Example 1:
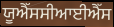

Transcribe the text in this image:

ਯੂਐੱਸਸੀਆਈਐੱਸ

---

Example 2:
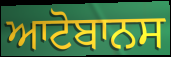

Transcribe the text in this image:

ਆਟੋਬਾਨਸ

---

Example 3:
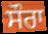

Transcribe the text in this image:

ਸੌਰਾ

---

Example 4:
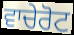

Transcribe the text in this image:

ਵਾਚੇਰੋਟ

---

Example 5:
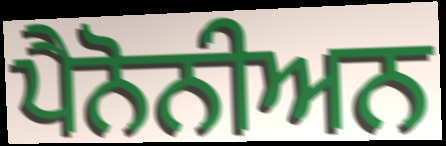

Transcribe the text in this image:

ਪੈਨੋਨੀਅਨ